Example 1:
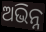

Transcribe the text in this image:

ଅଭିନ୍ନ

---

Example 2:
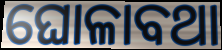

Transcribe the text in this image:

ଘୋଳାବଥା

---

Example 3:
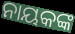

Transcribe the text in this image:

ନାୟକଙ୍କ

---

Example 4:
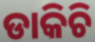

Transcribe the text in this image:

ଡାକିଚି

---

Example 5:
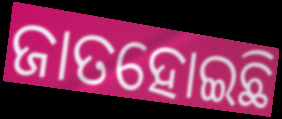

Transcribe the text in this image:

ଜାତହୋଇଛି